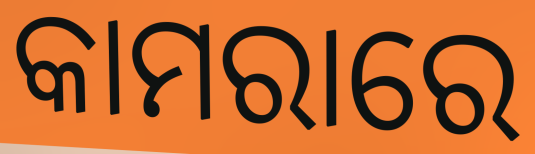
କାମରାରେ